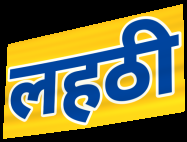
लहठी